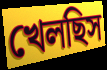
খেলছিস